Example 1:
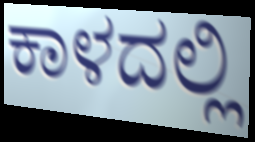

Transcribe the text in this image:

ಕಾಳದಲ್ಲಿ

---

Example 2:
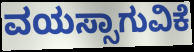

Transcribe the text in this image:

ವಯಸ್ಸಾಗುವಿಕೆ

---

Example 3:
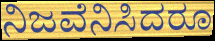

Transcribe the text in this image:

ನಿಜವೆನಿಸಿದರೂ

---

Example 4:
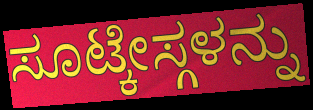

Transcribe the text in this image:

ಸೂಟ್ಕೇಸ್ಗಳನ್ನು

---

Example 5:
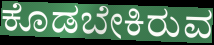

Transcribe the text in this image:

ಕೊಡಬೇಕಿರುವ